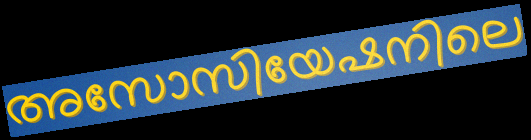
അസോസിയേഷനിലെ